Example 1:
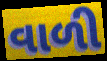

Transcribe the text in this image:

વાળી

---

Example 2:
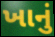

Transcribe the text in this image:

ખાનું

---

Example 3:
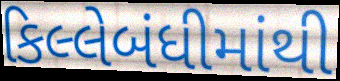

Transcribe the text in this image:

કિલ્લેબંધીમાંથી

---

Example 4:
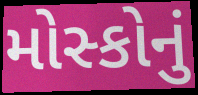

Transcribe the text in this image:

મોસ્કોનું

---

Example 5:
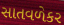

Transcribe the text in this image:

સાતવળેકર